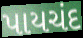
પાયચંદ